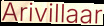
Arivillaar